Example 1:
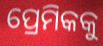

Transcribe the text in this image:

ପ୍ରେମିକକୁ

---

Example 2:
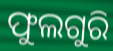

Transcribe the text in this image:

ଫୁଲଗୁରି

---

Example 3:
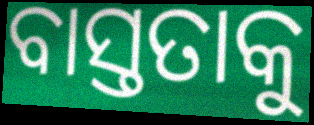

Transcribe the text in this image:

ବାସ୍ତତାକୁ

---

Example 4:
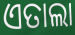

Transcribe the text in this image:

ଏତାଲା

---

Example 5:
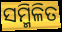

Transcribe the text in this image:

ସମ୍ମିଳିତ